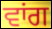
ਵਾਂਗ